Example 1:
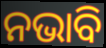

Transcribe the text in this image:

ନଭାବି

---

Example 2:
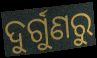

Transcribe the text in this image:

ଦୁର୍ଗୁଣରୁ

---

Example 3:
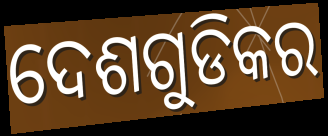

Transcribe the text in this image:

ଦେଶଗୁଡିକର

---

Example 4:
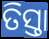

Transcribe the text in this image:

ତିସ୍ତା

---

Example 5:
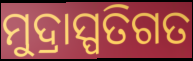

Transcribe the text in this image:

ମୁଦ୍ରାସ୍ପତିଗତ